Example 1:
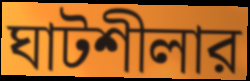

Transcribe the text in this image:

ঘাটশীলার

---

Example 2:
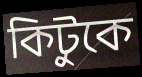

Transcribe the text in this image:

কিটুকে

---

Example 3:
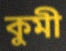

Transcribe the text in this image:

কুমী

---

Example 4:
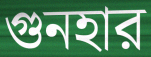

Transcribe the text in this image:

গুনহার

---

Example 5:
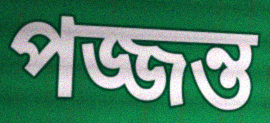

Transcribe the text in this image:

পজ্জন্ত